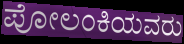
ಪೋಲಂಕಿಯವರು